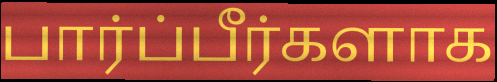
பார்ப்பீர்களாக